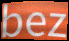
bez